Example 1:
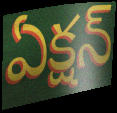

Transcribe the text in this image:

ఏక్షన్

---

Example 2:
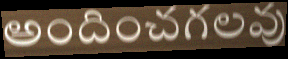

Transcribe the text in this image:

అందించగలవు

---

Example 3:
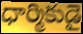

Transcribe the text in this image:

ధార్మికుడై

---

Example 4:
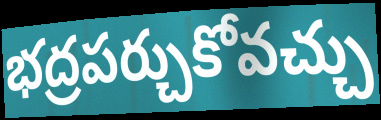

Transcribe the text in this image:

భద్రపర్చుకోవచ్చు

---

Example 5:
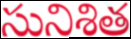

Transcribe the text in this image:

సునిశిత